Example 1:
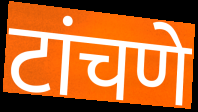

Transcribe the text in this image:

टांचणे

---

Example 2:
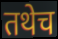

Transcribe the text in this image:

तथेच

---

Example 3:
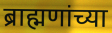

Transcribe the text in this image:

ब्राह्मणांच्या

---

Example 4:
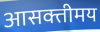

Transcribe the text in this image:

आसक्तीमय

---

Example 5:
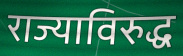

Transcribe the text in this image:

राज्याविरुद्ध